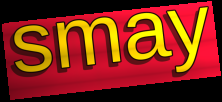
smay